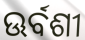
ଊର୍ବଶୀ